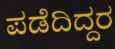
ಪಡೆದಿದ್ದರ